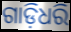
ଗାଡ଼ିଧରି